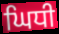
ਘਿਧੀ